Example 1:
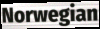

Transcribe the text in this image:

Norwegian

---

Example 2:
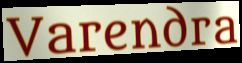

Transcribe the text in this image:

Varendra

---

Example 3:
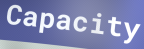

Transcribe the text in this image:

Capacity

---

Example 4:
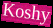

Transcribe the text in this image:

Koshy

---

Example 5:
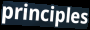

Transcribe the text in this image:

principles